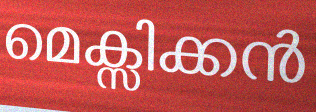
മെക്സിക്കൻ